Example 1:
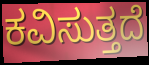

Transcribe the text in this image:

ಕವಿಸುತ್ತದೆ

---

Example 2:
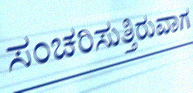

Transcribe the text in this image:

ಸಂಚರಿಸುತ್ತಿರುವಾಗ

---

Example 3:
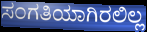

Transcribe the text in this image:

ಸಂಗತಿಯಾಗಿರಲಿಲ್ಲ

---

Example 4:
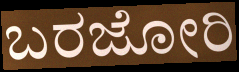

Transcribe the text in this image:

ಬರಜೋರಿ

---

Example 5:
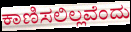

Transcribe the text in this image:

ಕಾಣಿಸಲಿಲ್ಲವೆಂದು